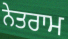
ਨੇਤਰਾਮ